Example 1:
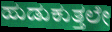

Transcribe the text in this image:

ಹುಡುಕುತ್ತಲೇ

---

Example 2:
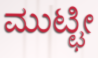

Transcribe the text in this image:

ಮುಟ್ಟೀ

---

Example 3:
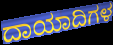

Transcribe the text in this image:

ದಾಯಾದಿಗಳ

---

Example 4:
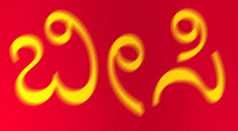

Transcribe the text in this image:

ಬೀಸಿ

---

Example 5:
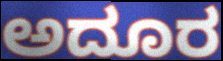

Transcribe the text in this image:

ಅದೂರ